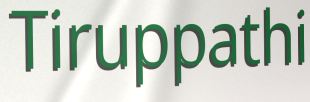
Tiruppathi